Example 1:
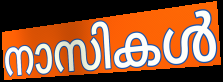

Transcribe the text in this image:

നാസികൾ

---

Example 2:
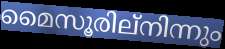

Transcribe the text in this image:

മൈസൂരില്നിന്നും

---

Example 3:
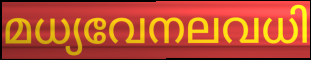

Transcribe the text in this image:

മധ്യവേനലവധി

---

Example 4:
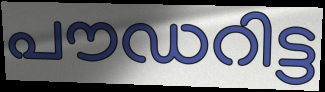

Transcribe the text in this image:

പൗഡറിട്ട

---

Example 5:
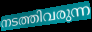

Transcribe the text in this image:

നടത്തിവരുന്ന